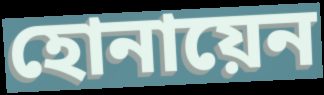
হোনায়েন